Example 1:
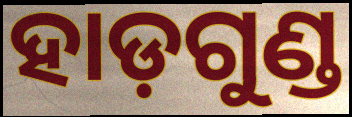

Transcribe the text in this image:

ହାଡ଼ଗୁଣ୍ଡ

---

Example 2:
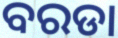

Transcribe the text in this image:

ବରଡା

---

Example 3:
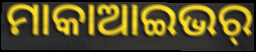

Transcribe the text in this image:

ମାକାଆଇଭର୍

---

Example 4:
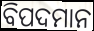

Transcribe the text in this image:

ବିପଦମାନ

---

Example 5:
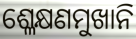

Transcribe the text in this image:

ଶ୍ଳେକ୍ଷଣମୁଖାନି